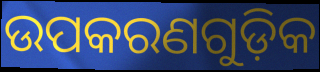
ଉପକରଣଗୁଡ଼ିକ